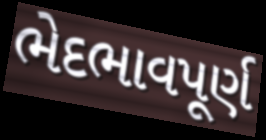
ભેદભાવપૂર્ણ